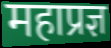
महाप्रज्ञ